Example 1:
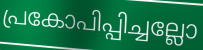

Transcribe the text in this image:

പ്രകോപിപ്പിച്ചല്ലോ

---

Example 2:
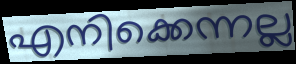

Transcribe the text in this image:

എനിക്കെന്നല്ല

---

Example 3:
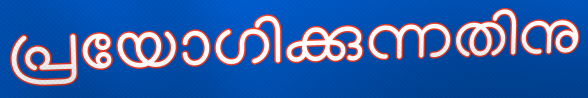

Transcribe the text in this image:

പ്രയോഗിക്കുന്നതിനു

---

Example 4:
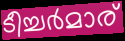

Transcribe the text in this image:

ടീച്ചർമാര്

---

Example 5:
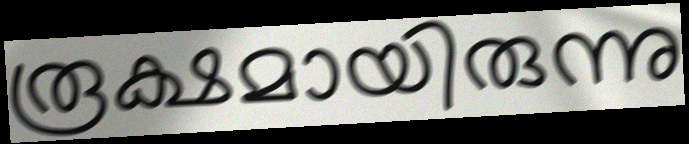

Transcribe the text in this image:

രൂക്ഷമായിരുന്നു